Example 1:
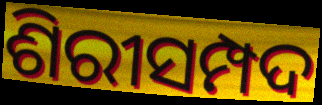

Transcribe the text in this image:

ଶିରୀସମ୍ପଦ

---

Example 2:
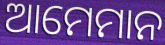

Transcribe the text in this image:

ଆମେମାନ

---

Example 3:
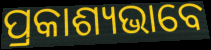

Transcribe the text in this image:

ପ୍ରକାଶ୍ୟଭାବେ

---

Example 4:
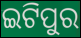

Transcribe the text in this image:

ଇଟିପୁର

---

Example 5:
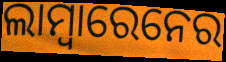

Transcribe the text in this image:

ଲାମ୍ବାରେନେର